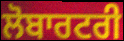
ਲੋਬਾਰਟਰੀ